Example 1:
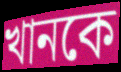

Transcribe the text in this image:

খানকে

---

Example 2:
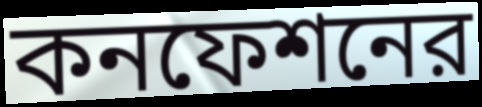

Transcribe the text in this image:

কনফেশনের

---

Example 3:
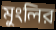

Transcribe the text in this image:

মুংলির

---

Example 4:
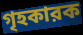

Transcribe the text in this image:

গৃহকারক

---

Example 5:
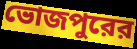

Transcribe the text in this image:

ভোজপুরের